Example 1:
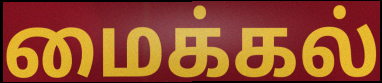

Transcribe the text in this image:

மைக்கல்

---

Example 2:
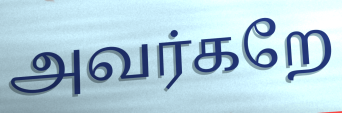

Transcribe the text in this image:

அவர்கறே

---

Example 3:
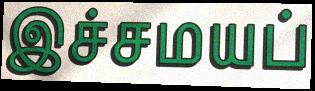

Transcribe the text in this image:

இச்சமயப்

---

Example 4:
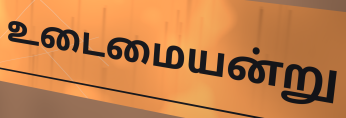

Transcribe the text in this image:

உடைமையன்று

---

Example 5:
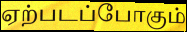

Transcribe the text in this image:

ஏற்படப்போகும்